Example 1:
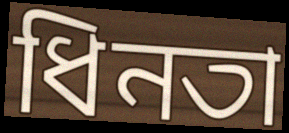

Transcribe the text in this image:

ধিনতা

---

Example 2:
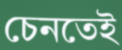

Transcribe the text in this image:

চেনতেই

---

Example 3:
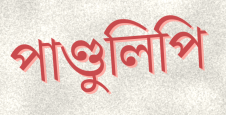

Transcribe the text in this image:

পাণ্ডুলিপি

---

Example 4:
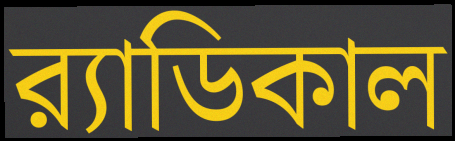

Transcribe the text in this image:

র‍্যাডিকাল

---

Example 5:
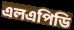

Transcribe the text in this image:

এলএপিডি